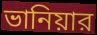
ভানিয়ার